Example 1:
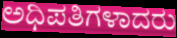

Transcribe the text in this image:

ಅಧಿಪತಿಗಳಾದರು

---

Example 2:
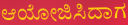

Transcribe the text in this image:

ಆಯೋಜಿಸಿದಾಗ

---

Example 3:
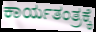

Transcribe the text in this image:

ಕಾರ್ಯತಂತ್ರಕ್ಕೆ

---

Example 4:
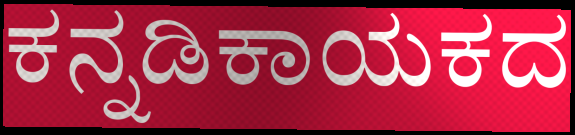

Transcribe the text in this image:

ಕನ್ನಡಿಕಾಯಕದ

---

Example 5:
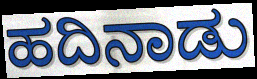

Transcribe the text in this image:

ಹದಿನಾಡು